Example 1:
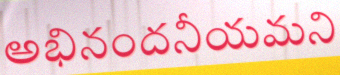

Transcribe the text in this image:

అభినందనీయమని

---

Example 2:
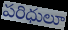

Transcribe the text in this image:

పరిధులూ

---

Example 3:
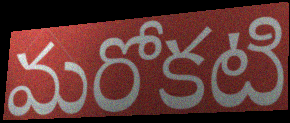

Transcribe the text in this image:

మరోకటి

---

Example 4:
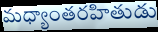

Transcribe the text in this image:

మధ్యాంతరహితుడు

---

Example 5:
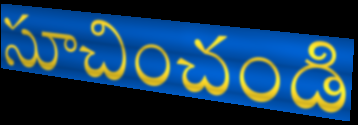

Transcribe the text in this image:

సూచించండి